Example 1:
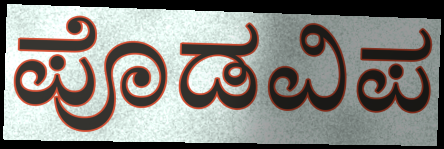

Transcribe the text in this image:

ಪೊಡವಿಪ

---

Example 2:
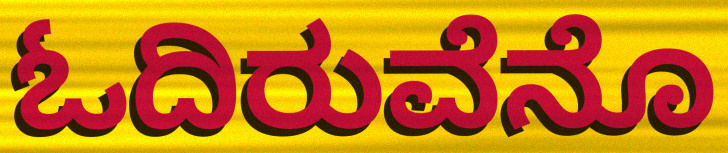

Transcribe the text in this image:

ಓದಿರುವೆನೊ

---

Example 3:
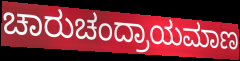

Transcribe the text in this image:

ಚಾರುಚಂದ್ರಾಯಮಾಣ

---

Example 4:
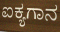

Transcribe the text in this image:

ಐಕ್ಯಗಾನ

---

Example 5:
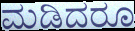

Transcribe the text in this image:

ಮಡಿದರೂ